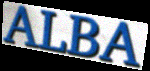
ALBA